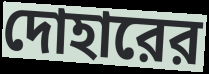
দোহারের